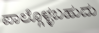
ಪಾಲ್ಗೊಳ್ಳಬಹುದು